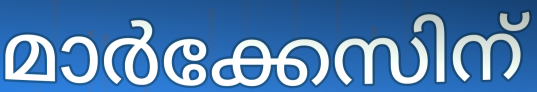
മാർക്കേസിന്